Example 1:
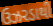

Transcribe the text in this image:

ઉઝરડાથી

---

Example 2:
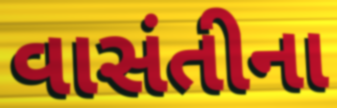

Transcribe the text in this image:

વાસંતીના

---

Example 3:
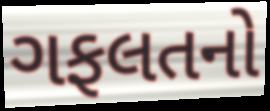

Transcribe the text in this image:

ગફલતનો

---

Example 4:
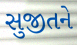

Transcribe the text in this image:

સુજીતને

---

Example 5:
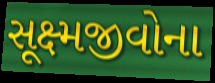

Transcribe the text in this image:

સૂક્ષ્મજીવોના